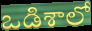
ఒడిశాలో